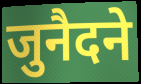
जुनैदने